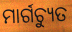
ମାର୍ଗଚ୍ୟୁତ